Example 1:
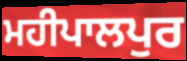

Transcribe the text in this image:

ਮਹੀਪਾਲਪੁਰ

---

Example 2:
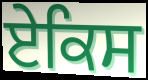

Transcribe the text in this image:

ਏਕਿਸ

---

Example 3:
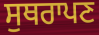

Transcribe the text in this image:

ਸੁਥਰਾਪਣ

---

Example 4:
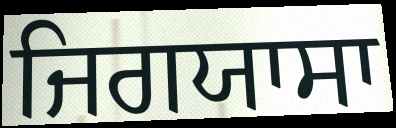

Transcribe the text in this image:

ਜਿਗਯਾਸਾ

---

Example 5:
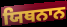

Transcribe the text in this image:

ਯਿਥਨਾਨ